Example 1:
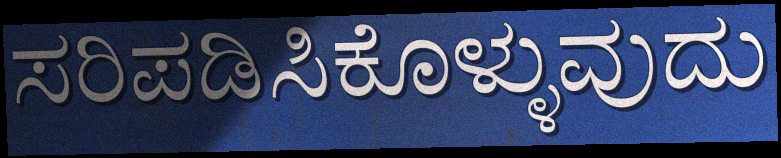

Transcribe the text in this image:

ಸರಿಪಡಿಸಿಕೊಳ್ಳುವುದು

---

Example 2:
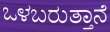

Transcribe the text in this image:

ಒಳಬರುತ್ತಾನೆ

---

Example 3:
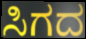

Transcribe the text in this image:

ಸಿಗದ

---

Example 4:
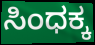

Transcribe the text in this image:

ಸಿಂಧಕ್ಕ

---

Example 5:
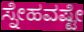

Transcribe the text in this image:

ಸ್ನೇಹವಷ್ಟೇ